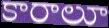
కారాలూ